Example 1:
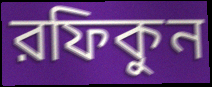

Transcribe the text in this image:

রফিকুন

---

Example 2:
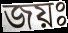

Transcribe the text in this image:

জয়ঃ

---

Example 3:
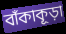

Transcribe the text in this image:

বাঁকাকূড়া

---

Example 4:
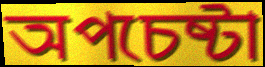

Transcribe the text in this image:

অপচেষ্টা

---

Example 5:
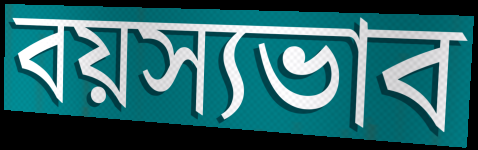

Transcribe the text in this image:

বয়স্যভাব